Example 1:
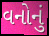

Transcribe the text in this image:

વનોનું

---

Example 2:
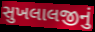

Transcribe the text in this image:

સુખલાલજીનું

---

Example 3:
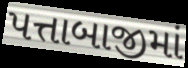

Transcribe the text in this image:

પત્તાબાજીમાં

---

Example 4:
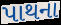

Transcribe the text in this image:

પાથના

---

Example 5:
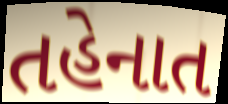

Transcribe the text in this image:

તહેનાત